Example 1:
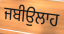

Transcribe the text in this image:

ਜਬੀਉਲਾਹ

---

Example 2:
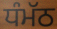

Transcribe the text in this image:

ਧੰਮੱਠ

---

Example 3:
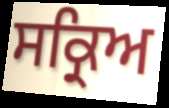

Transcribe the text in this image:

ਸਕ੍ਰਿਅ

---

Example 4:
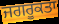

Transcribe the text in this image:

ਜਗਰੂਕਤਾ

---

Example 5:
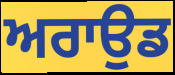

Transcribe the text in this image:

ਅਰਾਉਡ